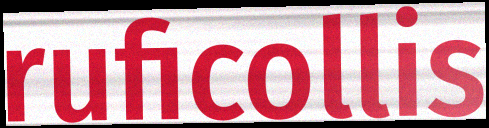
ruficollis